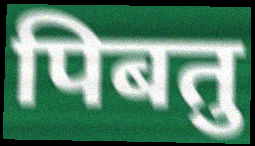
पिबतु